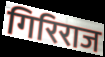
गिरिराज